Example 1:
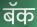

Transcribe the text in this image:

बॅक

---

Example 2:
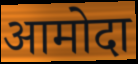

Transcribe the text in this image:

आमोदा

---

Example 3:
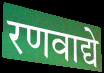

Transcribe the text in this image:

रणवाद्ये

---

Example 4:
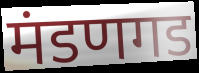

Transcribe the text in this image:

मंडणगड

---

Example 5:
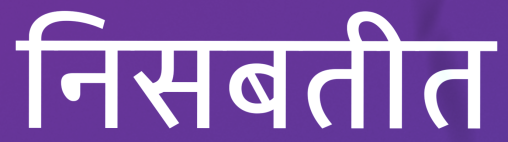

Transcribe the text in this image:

निसबतीत